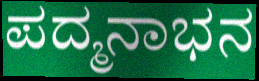
ಪದ್ಮನಾಭನ